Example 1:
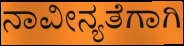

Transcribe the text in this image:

ನಾವೀನ್ಯತೆಗಾಗಿ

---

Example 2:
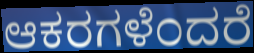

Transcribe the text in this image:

ಆಕರಗಳೆಂದರೆ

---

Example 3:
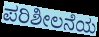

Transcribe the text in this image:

ಪರಿಶೀಲನೆಯ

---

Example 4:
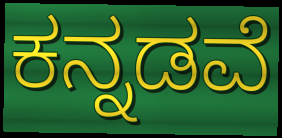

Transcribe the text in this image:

ಕನ್ನಡವೆ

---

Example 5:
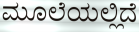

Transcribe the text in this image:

ಮೂಲೆಯಲ್ಲಿದೆ